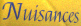
Nuisances